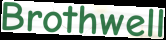
Brothwell